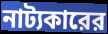
নাট্যকারের